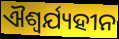
ଐଶ୍ୱର୍ଯ୍ୟହୀନ